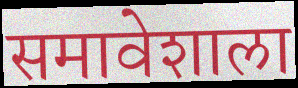
समावेशाला